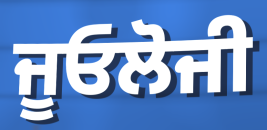
ਜੂਓਲੋਜੀ